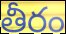
తీరం